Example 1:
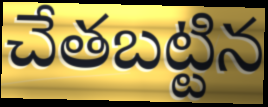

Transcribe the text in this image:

చేతబట్టిన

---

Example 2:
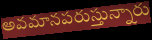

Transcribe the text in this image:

అవమానపరుస్తున్నారు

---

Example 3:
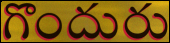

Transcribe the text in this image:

గొందురు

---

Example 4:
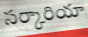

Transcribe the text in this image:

సర్కారియా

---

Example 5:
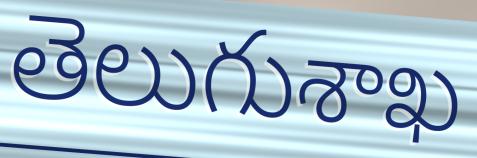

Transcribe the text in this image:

తెలుగుశాఖ